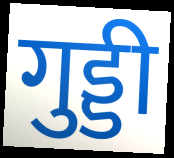
गुड्डी